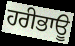
ਹਰੀਭਾਊ